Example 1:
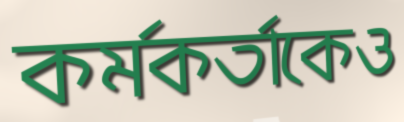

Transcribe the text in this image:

কর্মকর্তাকেও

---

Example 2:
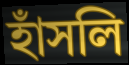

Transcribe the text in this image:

হাঁসলি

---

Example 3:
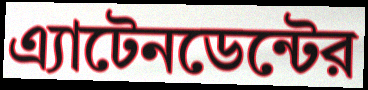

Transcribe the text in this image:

এ্যাটেনডেন্টের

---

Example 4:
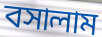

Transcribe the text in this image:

বসালাম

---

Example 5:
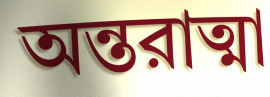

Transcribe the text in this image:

অন্তরাত্মা